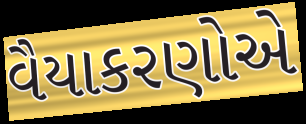
વૈયાકરણોએ